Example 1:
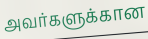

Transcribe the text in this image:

அவர்களுக்கான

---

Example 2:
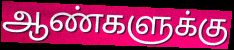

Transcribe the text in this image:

ஆண்களுக்கு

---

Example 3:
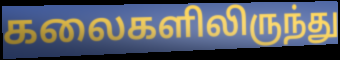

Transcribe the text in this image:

கலைகளிலிருந்து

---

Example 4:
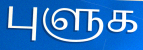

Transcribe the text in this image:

புளுக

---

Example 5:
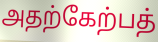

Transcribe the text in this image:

அதற்கேற்பத்